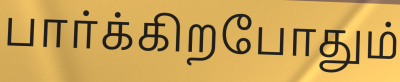
பார்க்கிறபோதும்